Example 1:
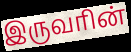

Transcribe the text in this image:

இருவரின்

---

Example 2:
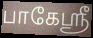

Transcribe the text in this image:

பாகேஸ்ரீ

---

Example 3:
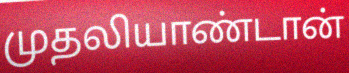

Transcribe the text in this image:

முதலியாண்டான்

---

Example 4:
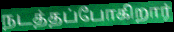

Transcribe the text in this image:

நடத்தப்போகிறார்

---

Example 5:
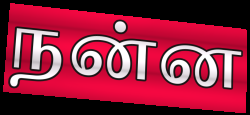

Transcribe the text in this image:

நன்ன